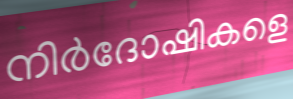
നിർദോഷികളെ